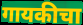
गायकीचा